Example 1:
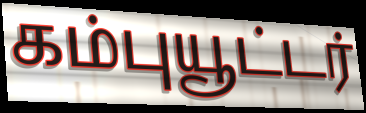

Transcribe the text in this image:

கம்புயூட்டர்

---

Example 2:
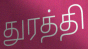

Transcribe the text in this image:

துரத்தி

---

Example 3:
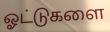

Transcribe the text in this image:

ஓட்டுகளை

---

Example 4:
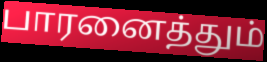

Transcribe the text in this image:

பாரனைத்தும்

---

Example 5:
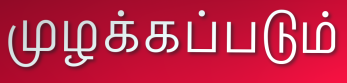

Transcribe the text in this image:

முழக்கப்படும்